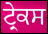
ਟ੍ਰੇਕਸ